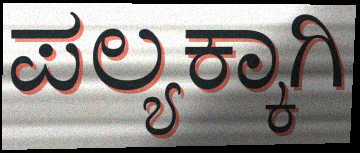
ಪಲ್ಯಕ್ಕಾಗಿ